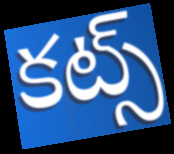
కట్స్